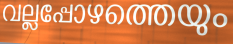
വല്ലപ്പോഴത്തെയും